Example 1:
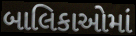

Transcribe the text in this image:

બાલિકાઓમાં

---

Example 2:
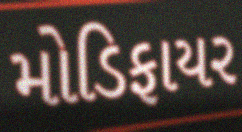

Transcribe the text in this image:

મોડિફાયર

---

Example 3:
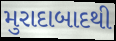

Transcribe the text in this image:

મુરાદાબાદથી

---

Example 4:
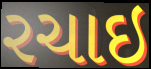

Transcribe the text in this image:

રચાઇ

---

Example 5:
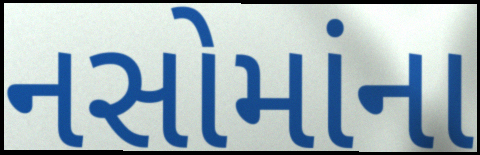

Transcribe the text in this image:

નસોમાંના